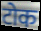
टोक